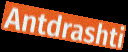
Antdrashti